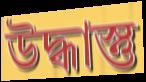
উদ্ধাস্তু